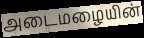
அடைமழையின்